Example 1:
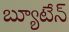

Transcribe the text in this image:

బ్యూటేన్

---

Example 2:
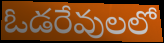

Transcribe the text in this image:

ఓడరేవులలో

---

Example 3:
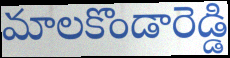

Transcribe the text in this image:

మాలకొండారెడ్డి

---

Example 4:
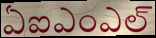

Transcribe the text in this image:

ఏఐఎంఎల్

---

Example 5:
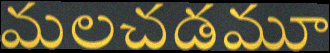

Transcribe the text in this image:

మలచడమూ